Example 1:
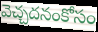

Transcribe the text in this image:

వెచ్చదనంకోసం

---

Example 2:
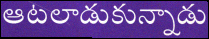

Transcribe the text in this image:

ఆటలాడుకున్నాడు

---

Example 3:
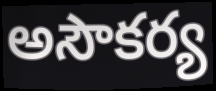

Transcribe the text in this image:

అసౌకర్య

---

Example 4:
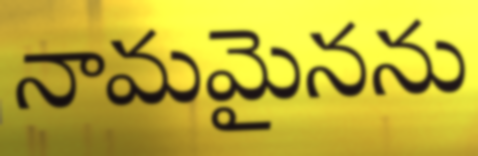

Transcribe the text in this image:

నామమైనను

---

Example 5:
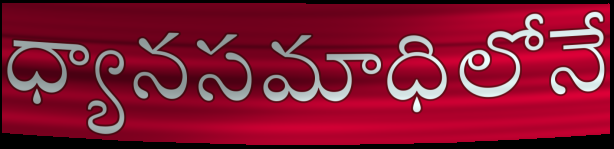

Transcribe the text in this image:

ధ్యానసమాధిలోనే